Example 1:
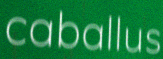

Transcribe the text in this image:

caballus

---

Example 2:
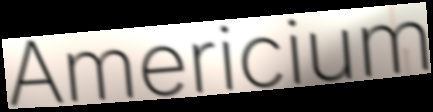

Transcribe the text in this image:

Americium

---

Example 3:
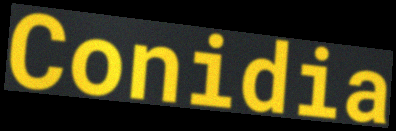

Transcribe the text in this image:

Conidia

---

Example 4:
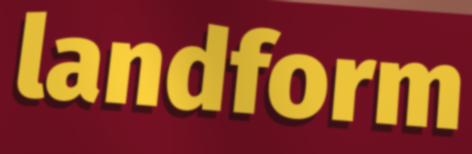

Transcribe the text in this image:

landform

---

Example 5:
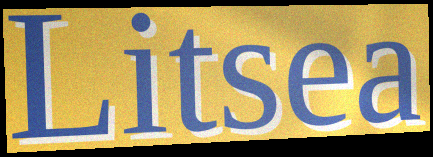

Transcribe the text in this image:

Litsea